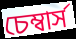
চেম্বার্স